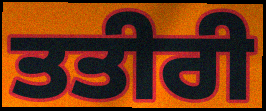
ਤਤੀਰੀ